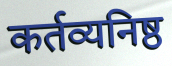
कर्तव्यनिष्ठ